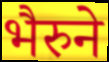
भैरुने